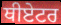
ਥੀਏਟਰ